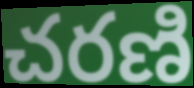
చరణి